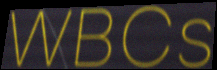
WBCs